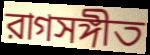
রাগসঙ্গীত